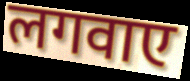
लगवाए